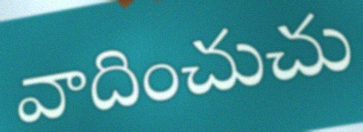
వాదించుచు